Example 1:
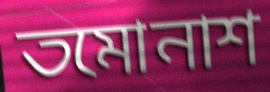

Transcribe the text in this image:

তমোনাশ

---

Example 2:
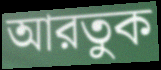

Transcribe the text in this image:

আরতুক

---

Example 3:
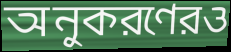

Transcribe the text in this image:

অনুকরণেরও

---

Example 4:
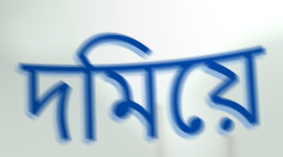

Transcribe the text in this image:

দমিয়ে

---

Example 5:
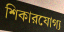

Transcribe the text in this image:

শিকারযোগ্য